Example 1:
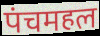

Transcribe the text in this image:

पंचमहल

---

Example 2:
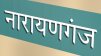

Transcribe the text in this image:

नारायणगंज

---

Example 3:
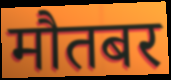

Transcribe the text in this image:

मौतबर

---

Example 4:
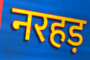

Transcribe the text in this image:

नरहड़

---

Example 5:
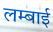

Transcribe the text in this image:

लम्बाई